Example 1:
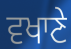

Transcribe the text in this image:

ਵਖਾਣੇ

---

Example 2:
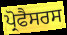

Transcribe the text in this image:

ਪ੍ਰੋਫੈਸਰਸ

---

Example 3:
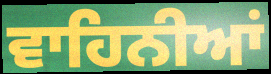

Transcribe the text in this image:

ਵਾਹਿਨੀਆਂ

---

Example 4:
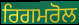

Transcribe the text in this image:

ਰਿਗਮਰੋਲ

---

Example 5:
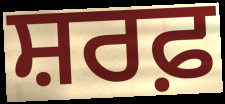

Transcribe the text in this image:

ਸ਼ਰਫ਼